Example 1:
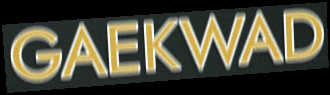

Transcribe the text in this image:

GAEKWAD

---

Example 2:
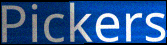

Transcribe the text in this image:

Pickers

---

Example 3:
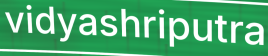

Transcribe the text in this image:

vidyashriputra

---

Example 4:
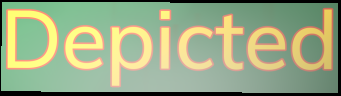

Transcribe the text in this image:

Depicted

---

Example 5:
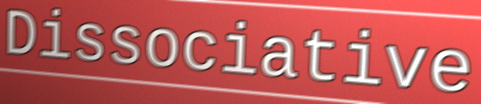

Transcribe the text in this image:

Dissociative